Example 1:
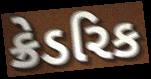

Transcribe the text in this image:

ક્રેડરિક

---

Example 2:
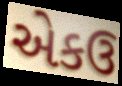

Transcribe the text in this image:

એકઉ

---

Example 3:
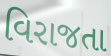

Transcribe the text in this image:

વિરાજતા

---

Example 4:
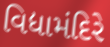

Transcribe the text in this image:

વિદ્યામંદિરે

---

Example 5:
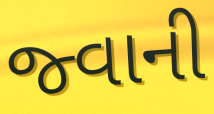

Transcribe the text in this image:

જ્વાની